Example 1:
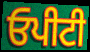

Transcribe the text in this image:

ਓਪੀਟੀ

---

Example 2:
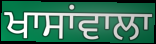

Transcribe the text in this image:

ਖਾਸਾਂਵਾਲਾ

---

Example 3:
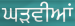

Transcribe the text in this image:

ਘੜਵੀਆਂ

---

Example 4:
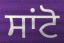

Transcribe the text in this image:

ਸਾਂਟੋ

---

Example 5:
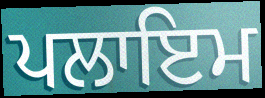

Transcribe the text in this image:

ਪਲਾਇਮ